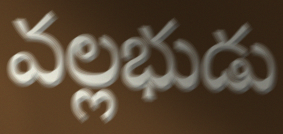
వల్లభుడు